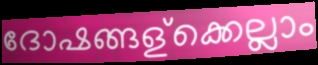
ദോഷങ്ങള്ക്കെല്ലാം